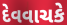
દેવવાચકે